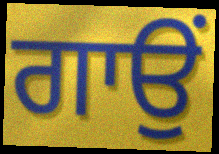
ਗਾਉਂ